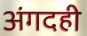
अंगदही